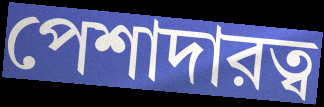
পেশাদারত্ব